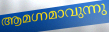
ആമഗ്നമാവുന്നു